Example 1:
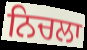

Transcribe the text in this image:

ਨਿਚਲਾ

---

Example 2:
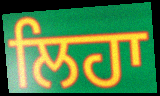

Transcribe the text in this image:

ਲਿਹਾ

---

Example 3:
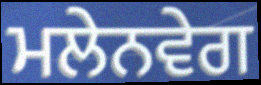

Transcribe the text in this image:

ਮਲੇਨਵੇਗ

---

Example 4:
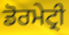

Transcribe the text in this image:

ਡੋਰਮੇਟ੍ਰੀ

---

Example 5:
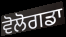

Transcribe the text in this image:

ਵੋਲੋਗਡਾ